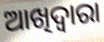
ଆଖିଦ୍ୱାରା